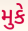
મુકે